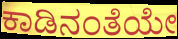
ಕಾಡಿನಂತೆಯೇ